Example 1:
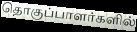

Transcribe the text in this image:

தொகுப்பாளர்களில்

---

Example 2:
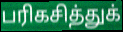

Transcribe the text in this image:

பரிகசித்துக்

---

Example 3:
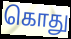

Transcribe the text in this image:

கொது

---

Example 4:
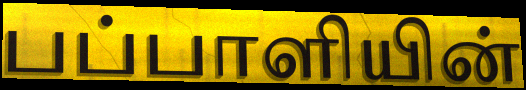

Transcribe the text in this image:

பப்பாளியின்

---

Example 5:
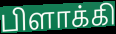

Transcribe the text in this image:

பிளாக்கி